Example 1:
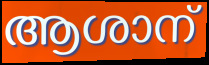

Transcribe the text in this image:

ആശാന്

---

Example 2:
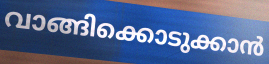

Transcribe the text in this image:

വാങ്ങിക്കൊടുക്കാൻ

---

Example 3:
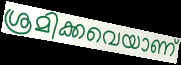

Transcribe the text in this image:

ശ്രമിക്കവെയാണ്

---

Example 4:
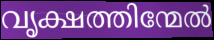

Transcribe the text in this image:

വൃക്ഷത്തിന്മേൽ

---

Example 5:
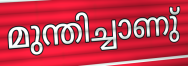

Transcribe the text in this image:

മുന്തിച്ചാണു്